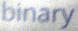
binary